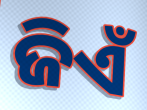
ଜିଏଁ